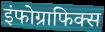
इंफोग्राफिक्स